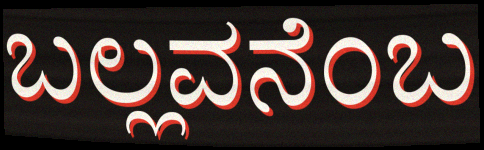
ಬಲ್ಲವನೆಂಬ